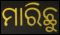
ମାରିଛୁ